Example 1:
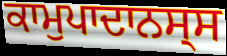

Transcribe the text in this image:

ਕਾਮੁਪਾਦਾਨਸ੍ਸ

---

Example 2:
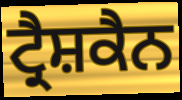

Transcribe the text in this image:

ਟ੍ਰੈਸ਼ਕੈਨ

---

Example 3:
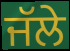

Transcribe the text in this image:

ਜੱਲੇ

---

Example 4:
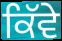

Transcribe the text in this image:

ਕਿੱਵੇ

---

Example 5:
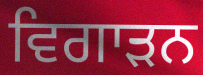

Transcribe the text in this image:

ਵਿਗਾੜਨ